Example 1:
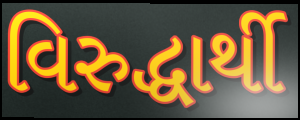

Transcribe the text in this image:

વિરુદ્ધાર્થી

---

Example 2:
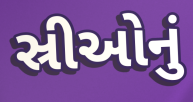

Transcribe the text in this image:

સ્રીઓનું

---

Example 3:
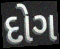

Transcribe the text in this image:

દોગ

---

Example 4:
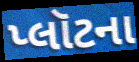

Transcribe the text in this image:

પ્લૉટના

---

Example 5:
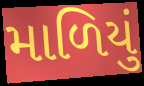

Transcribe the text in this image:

માળિયું